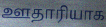
ஊதாரியாக